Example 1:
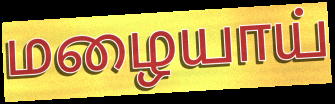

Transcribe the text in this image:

மழையாய்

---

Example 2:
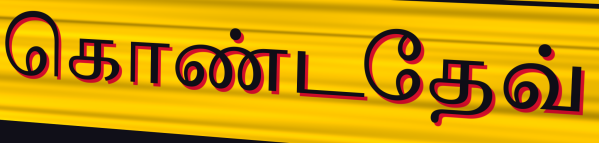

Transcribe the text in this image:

கொண்டதேவ்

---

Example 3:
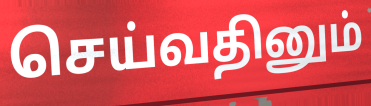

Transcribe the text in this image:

செய்வதினும்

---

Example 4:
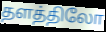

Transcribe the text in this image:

தளத்திலோ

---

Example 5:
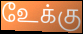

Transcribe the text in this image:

உேக்கு